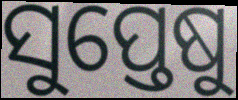
ସୁପ୍ତେଷୁ